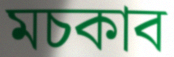
মচকাব